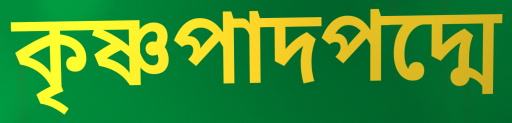
কৃষ্ণপাদপদ্মে